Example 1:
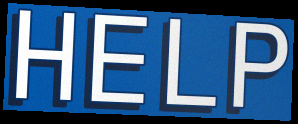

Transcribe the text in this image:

HELP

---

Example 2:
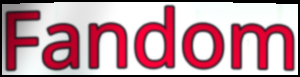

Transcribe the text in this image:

Fandom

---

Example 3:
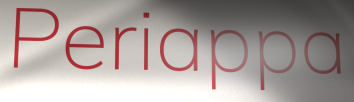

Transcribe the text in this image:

Periappa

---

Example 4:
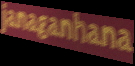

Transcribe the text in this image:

janaganhana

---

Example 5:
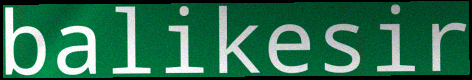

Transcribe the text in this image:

balikesir